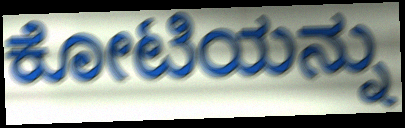
ಕೋಟಿಯನ್ನು